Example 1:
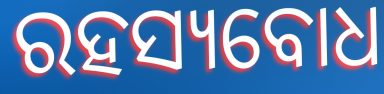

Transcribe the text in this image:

ରହସ୍ୟବୋଧ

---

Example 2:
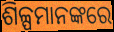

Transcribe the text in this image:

ଶିଳ୍ପମାନଙ୍କରେ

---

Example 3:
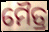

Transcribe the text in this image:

ମୈତ୍ର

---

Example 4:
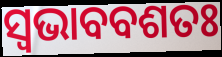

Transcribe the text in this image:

ସ୍ୱଭାବବଶତଃ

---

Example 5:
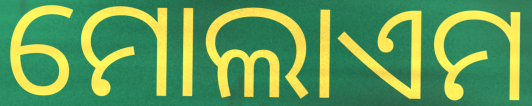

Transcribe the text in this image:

ମୋଲାଏମ